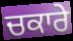
ਚਕਾਰੇ